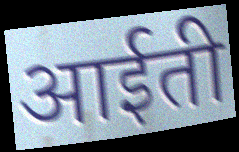
आईती